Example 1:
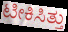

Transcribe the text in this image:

ಟೀಕಿಸಿತ್ತು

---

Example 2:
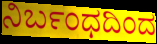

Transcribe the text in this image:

ನಿರ್ಬಂಧದಿಂದ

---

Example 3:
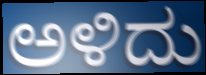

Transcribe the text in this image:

ಅಳಿದು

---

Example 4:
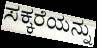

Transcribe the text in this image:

ಸಕ್ಕರೆಯನ್ನು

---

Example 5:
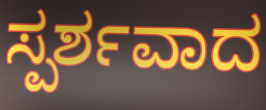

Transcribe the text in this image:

ಸ್ಪರ್ಶವಾದ